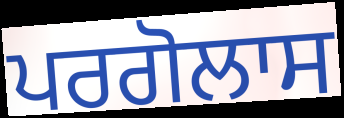
ਪਰਗੋਲਾਸ